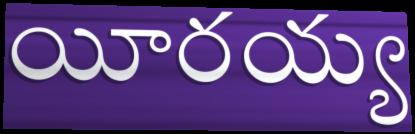
యీరయ్య